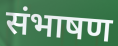
संभाषण